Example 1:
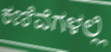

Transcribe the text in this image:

ಕಣಿವೆಗಳಲ್ಲಿ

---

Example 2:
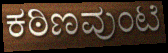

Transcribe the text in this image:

ಕಠಿಣವುಂಟೆ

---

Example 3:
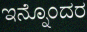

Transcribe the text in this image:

ಇನ್ನೊಂದರ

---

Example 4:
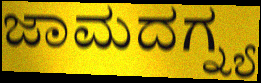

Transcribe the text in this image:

ಜಾಮದಗ್ನ್ಯ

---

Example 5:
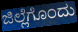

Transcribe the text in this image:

ಜಿಲ್ಲೆಗೊಂದು